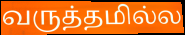
வருத்தமில்ல